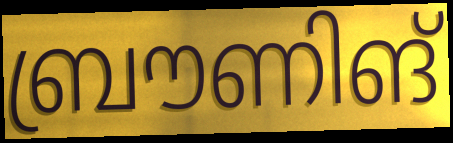
ബ്രൗണിങ്